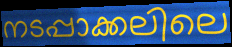
നടപ്പാക്കലിലെ